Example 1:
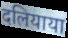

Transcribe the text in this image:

दलियाया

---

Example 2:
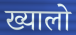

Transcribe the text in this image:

ख्यालो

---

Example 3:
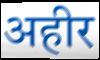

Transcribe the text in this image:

अहीर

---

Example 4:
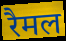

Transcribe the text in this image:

रैमल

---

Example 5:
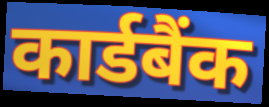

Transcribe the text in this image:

कार्डबैंक